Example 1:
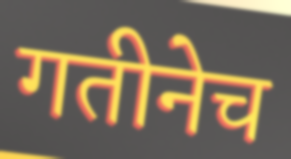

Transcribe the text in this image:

गतीनेच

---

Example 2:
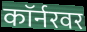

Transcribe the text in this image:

कॉर्नरवर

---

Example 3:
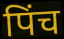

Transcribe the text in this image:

पिंच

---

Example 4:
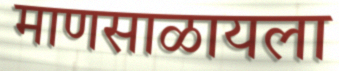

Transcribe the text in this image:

माणसाळायला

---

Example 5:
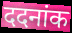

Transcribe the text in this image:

ददनांक